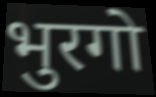
भुरगो